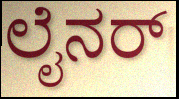
ಲೈನರ್